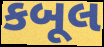
કબૂલ